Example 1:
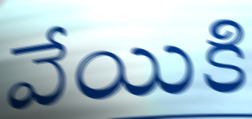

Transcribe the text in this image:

వేయికి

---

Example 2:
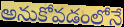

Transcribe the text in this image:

అనుకోవడంలోనే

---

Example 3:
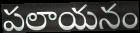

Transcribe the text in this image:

పలాయనం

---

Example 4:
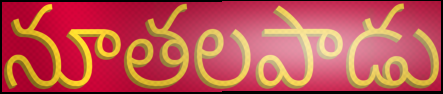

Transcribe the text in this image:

నూతలపాడు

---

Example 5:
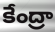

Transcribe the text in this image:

కేంద్రా